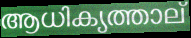
ആധിക്യത്താല്